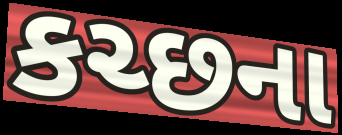
કચ્છના